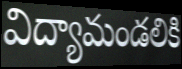
విద్యామండలికి